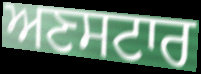
ਅਣਸਟਾਰ